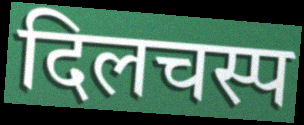
दिलचस्प